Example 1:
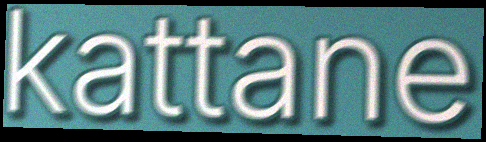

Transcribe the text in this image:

kattane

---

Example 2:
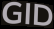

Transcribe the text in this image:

GID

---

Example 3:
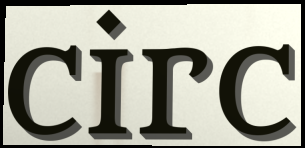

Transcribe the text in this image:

circ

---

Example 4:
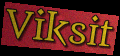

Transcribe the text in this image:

Viksit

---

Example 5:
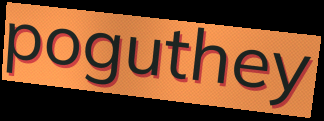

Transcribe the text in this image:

poguthey